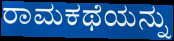
ರಾಮಕಥೆಯನ್ನು